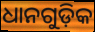
ଧାନଗୁଡ଼ିକ